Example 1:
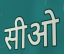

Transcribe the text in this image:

सीओ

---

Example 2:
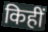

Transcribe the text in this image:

किहीं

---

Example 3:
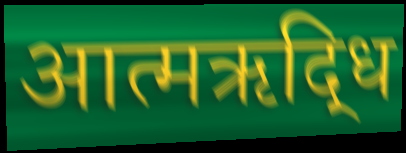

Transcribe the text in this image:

आत्मऋद्धि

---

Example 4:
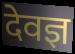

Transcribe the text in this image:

देवज्ञ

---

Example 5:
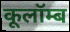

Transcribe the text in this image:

कूलॉम्ब